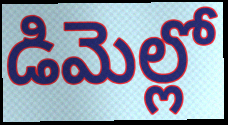
డిమెల్లో